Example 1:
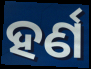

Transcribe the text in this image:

ହର୍ଣ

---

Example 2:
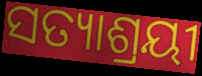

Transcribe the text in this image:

ସତ୍ୟାଶ୍ରୟୀ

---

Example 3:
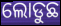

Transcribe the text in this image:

ଲୋଡୁଛ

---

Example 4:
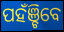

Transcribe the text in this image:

ପହଁଞ୍ଚିବେ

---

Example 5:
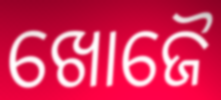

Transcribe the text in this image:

ଖୋଜୈ